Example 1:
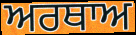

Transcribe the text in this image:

ਅਰਥਾਅ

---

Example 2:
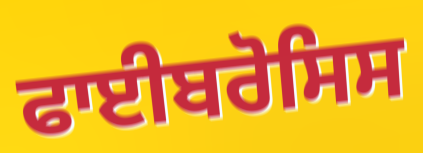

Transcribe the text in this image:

ਫਾਈਬਰੋਸਿਸ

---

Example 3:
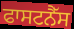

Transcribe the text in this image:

ਫਾਸਟਨੈੱਸ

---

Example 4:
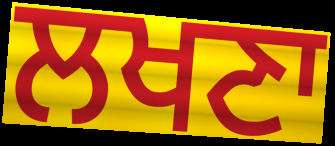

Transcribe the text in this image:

ਲਖਣਾ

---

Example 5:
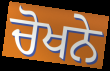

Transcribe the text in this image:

ਚੋਖਨੇ